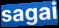
sagai